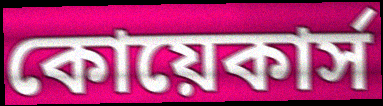
কোয়েকার্স